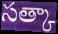
సత్కా